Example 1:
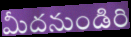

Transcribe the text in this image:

మీదనుండిరి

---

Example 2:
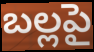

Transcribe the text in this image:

బల్లపై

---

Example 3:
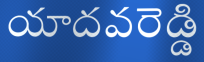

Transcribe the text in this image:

యాదవరెడ్డి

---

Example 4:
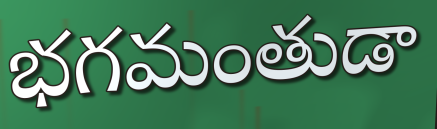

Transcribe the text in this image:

భగమంతుడా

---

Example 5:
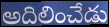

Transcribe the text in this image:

అదిలించేడు